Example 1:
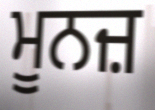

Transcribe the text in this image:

ਮੂਨਜ਼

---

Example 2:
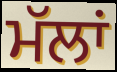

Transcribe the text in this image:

ਮੱਲਾਂ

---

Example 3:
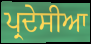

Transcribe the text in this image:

ਪ੍ਰਦੇਸੀਆ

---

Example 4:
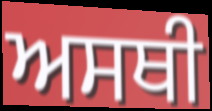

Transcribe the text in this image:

ਅਸਥੀ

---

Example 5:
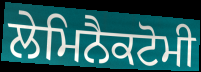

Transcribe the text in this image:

ਲੇਮਿਨੈਕਟੋਮੀ